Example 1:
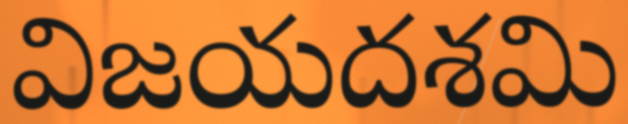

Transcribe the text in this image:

విజయదశమి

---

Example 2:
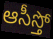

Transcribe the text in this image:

ఆసీస్తో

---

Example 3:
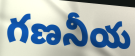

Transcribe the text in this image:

గణనీయ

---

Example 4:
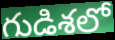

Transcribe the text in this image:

గుడిశలో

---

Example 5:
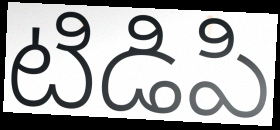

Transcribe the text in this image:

టిడిపి